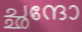
ച്ഛന്ദോ